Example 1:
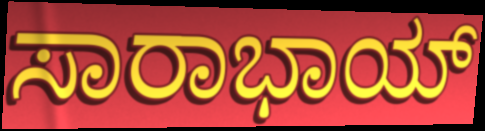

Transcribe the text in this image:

ಸಾರಾಭಾಯ್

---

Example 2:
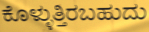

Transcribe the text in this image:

ಕೊಳ್ಳುತ್ತಿರಬಹುದು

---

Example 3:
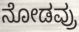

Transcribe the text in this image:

ನೋಡವ್ರು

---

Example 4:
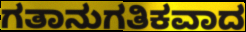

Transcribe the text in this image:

ಗತಾನುಗತಿಕವಾದ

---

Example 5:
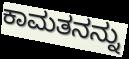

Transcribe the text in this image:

ಕಾಮತನನ್ನು